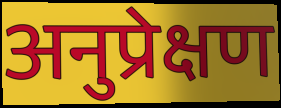
अनुप्रेक्षण